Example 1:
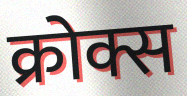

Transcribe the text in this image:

क्रोक्स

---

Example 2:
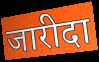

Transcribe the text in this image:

जारीदा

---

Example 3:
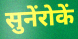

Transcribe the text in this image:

सुनेंरोकें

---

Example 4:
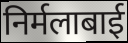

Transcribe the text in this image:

निर्मलाबाई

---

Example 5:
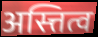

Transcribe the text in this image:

अस्त्तित्व